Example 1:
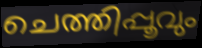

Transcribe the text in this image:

ചെത്തിപ്പൂവും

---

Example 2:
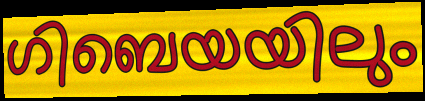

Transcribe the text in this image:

ഗിബെയയിലും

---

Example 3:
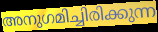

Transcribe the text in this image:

അനുഗമിച്ചിരിക്കുന്ന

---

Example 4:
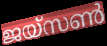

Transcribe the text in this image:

ജയ്സൺ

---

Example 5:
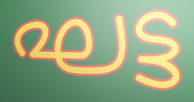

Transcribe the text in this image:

ഘട്ട